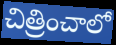
చిత్రించాలో